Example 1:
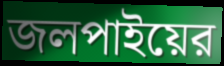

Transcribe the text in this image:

জলপাইয়ের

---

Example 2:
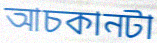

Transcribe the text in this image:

আচকানটা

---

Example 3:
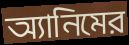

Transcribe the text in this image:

অ্যানিমের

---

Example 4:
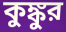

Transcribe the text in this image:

কুঙ্কুর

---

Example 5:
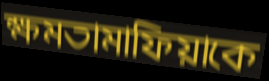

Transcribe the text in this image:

ক্ষমতামাফিয়াকে